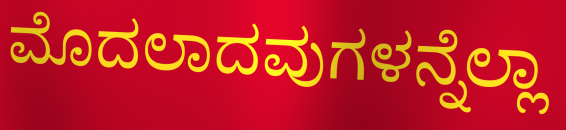
ಮೊದಲಾದವುಗಳನ್ನೆಲ್ಲಾ